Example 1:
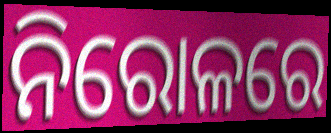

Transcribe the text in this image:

ନିରୋଳରେ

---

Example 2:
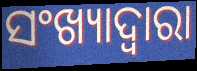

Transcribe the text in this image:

ସଂଖ୍ୟାଦ୍ୱାରା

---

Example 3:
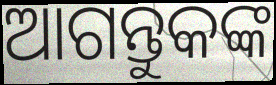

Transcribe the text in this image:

ଆଗନ୍ତୁକଙ୍କ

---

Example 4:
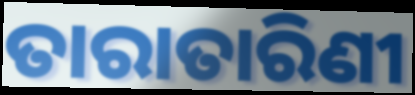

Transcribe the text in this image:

ତାରାତାରିଣୀ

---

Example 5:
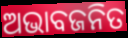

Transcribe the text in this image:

ଅଭାବଜନିତ